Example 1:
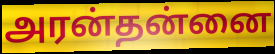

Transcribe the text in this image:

அரன்தன்னை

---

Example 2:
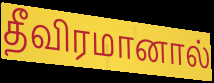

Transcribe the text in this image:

தீவிரமானால்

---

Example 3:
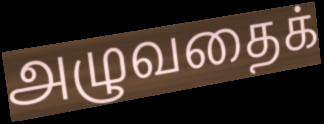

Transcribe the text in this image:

அழுவதைக்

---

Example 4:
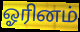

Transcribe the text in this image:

ஓரினம்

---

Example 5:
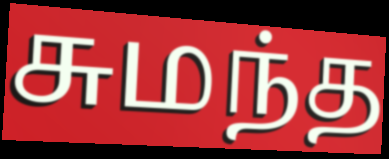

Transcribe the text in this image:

சுமந்த